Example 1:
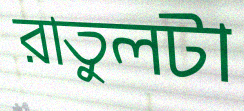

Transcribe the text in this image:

রাতুলটা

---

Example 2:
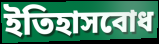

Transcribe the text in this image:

ইতিহাসবোধ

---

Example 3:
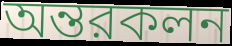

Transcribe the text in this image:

অন্তরকলন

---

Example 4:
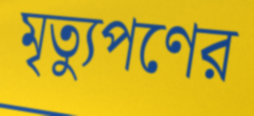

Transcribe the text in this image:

মৃত্যুপণের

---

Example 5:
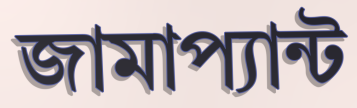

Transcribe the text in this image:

জামাপ্যান্ট